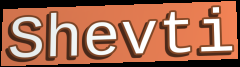
Shevti